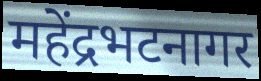
महेंद्रभटनागर